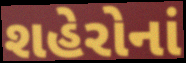
શહેરોનાં